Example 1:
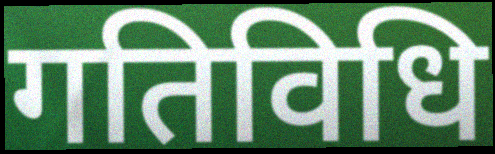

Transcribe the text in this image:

गतिविधि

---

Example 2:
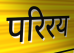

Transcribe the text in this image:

परिरय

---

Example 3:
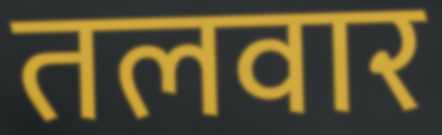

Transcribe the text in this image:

तलवार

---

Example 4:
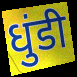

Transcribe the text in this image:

धुंडी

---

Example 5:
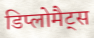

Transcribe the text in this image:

डिप्लोमैट्स